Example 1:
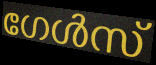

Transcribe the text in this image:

ഗേൾസ്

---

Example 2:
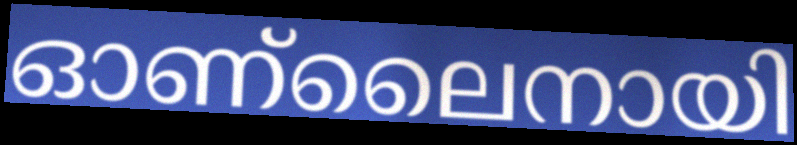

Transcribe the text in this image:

ഓണ്ലൈനായി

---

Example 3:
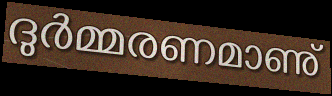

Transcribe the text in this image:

ദുർമ്മരണമാണു്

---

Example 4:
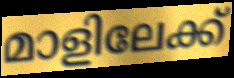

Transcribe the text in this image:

മാളിലേക്ക്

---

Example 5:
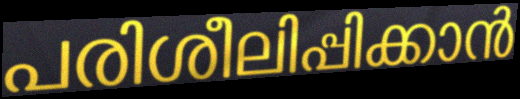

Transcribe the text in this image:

പരിശീലിപ്പിക്കാൻ